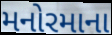
મનોરમાના